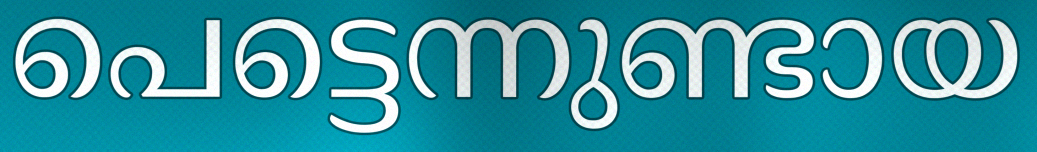
പെട്ടെന്നുണ്ടായ